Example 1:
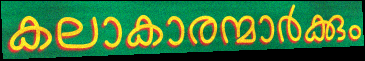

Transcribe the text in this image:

കലാകാരന്മാർക്കും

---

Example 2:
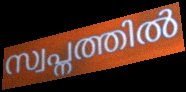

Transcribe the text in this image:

സ്വപ്നത്തിൽ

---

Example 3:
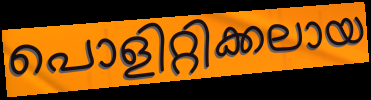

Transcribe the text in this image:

പൊളിറ്റിക്കലായ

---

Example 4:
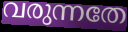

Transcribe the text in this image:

വരുന്നതേ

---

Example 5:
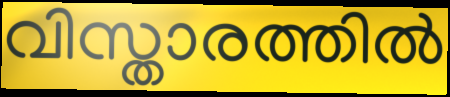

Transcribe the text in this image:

വിസ്താരത്തിൽ